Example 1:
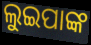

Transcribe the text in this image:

ଲୁଇପାଙ୍କ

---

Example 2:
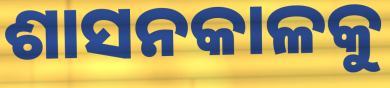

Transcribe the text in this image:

ଶାସନକାଳକୁ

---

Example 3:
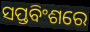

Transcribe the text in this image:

ସପ୍ତବିଂଶରେ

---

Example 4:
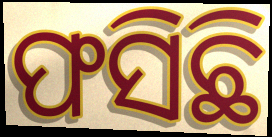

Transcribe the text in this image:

ଫସିଛି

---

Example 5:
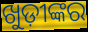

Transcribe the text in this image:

ଖୁଡ଼ୀଙ୍କର